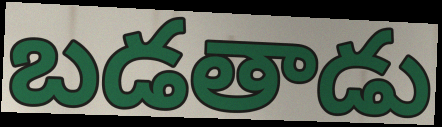
బడతాడు